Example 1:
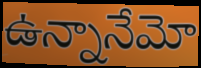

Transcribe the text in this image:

ఉన్నానేమో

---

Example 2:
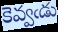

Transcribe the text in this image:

కెవ్వఁడు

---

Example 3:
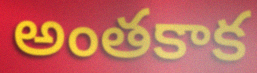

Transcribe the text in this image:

అంతకాక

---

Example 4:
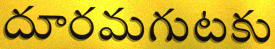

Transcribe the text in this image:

దూరమగుటకు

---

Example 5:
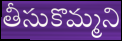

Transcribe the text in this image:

తీసుకొమ్మని